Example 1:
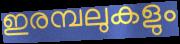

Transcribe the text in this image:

ഇരമ്പലുകളും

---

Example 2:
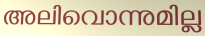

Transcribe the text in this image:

അലിവൊന്നുമില്ല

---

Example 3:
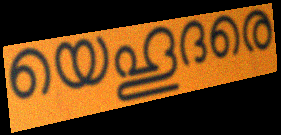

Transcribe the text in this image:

യെഹൂദരെ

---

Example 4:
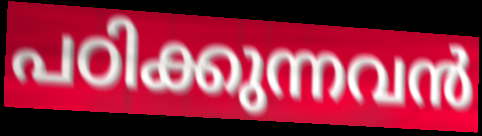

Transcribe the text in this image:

പഠിക്കുന്നവൻ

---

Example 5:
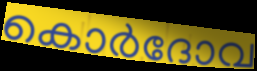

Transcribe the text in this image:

കൊർദോവ